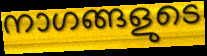
നാഗങ്ങളുടെ